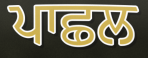
ਪਾਛਲ